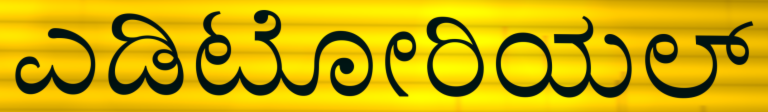
ಎಡಿಟೋರಿಯಲ್